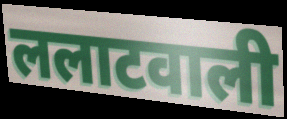
ललाटवाली